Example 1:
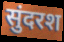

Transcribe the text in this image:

सुंदरश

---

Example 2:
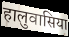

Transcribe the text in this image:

हालुवासिया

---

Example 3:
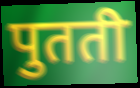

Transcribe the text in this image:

पुतती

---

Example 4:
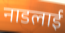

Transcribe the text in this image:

नाडलाई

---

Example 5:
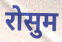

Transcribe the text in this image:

रोसुम